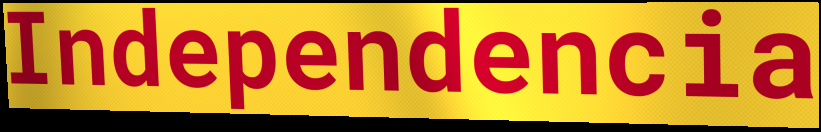
Independencia